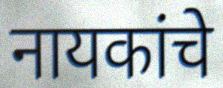
नायकांचे